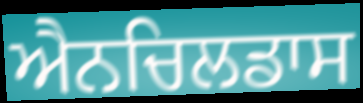
ਐਨਚਿਲਡਾਸ